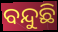
ବନ୍ଦୁଛି